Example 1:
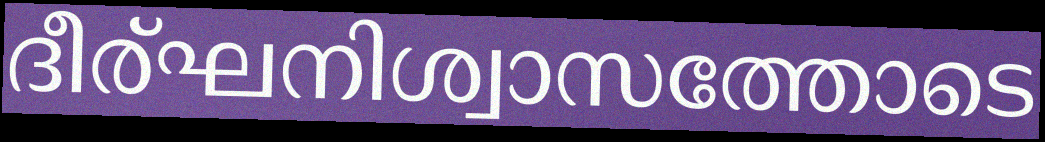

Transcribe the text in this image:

ദീര്ഘനിശ്വാസത്തോടെ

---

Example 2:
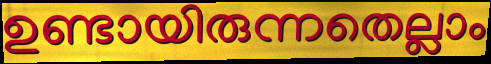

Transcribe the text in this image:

ഉണ്ടായിരുന്നതെല്ലാം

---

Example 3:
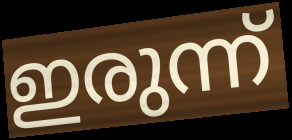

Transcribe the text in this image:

ഇരുന്ന്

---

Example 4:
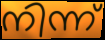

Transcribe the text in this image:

നിന്ന്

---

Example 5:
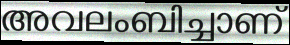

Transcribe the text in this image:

അവലംബിച്ചാണ്